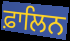
ਫ਼ਾਲਿਨ